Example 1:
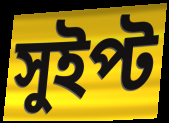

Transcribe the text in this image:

সুইপ্ট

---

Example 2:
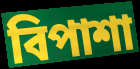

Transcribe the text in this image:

বিপাশা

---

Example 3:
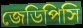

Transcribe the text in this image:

জেডিপিসি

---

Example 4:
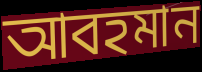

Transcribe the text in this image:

আবহমান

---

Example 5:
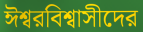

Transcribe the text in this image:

ঈশ্বরবিশ্বাসীদের